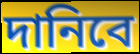
দানিবে